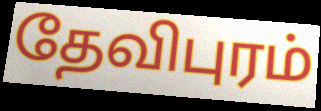
தேவிபுரம்